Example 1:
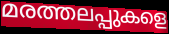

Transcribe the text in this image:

മരത്തലപ്പുകളെ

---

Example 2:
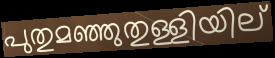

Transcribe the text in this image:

പുതുമഞ്ഞുതുള്ളിയില്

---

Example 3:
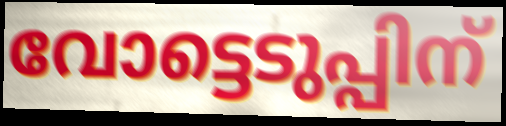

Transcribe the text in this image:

വോട്ടെടുപ്പിന്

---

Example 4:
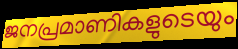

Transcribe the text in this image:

ജനപ്രമാണികളുടെയും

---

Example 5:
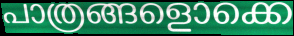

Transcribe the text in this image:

പാത്രങ്ങളൊക്കെ